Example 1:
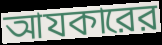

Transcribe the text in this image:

আযকারের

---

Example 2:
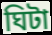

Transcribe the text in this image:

ঘিটা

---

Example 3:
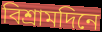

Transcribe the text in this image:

বিশ্রামদিনে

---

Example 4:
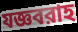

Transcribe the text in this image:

যজ্ঞবরাহ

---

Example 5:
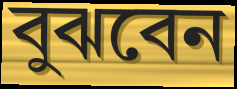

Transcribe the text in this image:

বুঝবেন